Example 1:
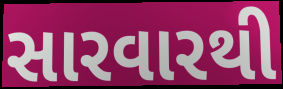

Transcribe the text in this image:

સારવારથી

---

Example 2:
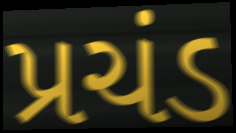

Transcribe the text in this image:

પ્રચંડ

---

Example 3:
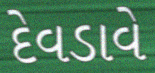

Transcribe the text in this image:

દેવડાવે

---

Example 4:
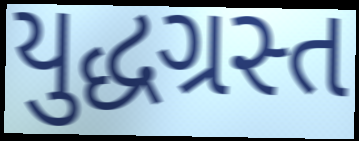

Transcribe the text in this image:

યુદ્ધગ્રસ્ત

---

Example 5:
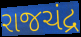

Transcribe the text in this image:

રાજચંદ્ર